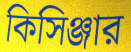
কিসিঞ্জার